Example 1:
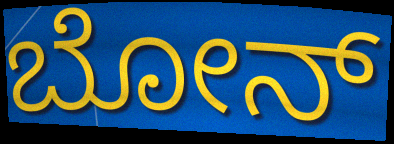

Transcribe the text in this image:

ಬೋನ್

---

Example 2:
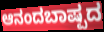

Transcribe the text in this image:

ಆನಂದಬಾಷ್ಪದ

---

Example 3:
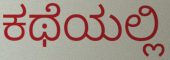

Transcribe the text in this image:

ಕಥೆಯಲ್ಲಿ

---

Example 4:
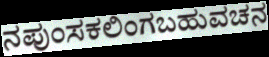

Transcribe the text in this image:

ನಪುಂಸಕಲಿಂಗಬಹುವಚನ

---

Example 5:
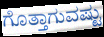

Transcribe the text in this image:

ಗೊತ್ತಾಗುವಷ್ಟು